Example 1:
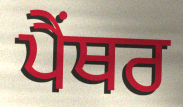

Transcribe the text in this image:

ਪੈੰਥਰ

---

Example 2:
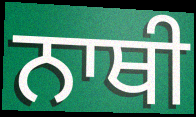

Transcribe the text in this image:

ਨਾਥੀ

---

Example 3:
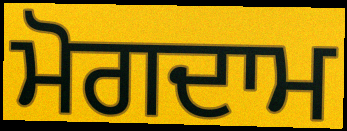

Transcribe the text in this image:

ਮੋਗਦਾਮ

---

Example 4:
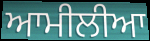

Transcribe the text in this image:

ਆਮੀਲੀਆ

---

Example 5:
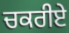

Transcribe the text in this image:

ਚਕਰੀਏ